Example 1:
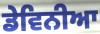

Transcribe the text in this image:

ਡੇਵਿਨੀਆ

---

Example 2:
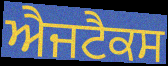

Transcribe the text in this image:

ਐਜਟੈਕਸ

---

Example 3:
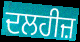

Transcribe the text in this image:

ਦਲਹੀਜ਼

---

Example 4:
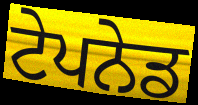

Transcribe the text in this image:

ਟੇਪਨੇਡ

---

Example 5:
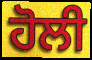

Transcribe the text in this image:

ਹੋਲੀ